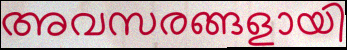
അവസരങ്ങളായി